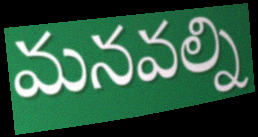
మనవల్ని